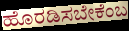
ಹೊರಡಿಸಬೇಕೆಂಬ